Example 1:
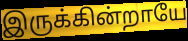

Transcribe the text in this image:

இருக்கின்றாயே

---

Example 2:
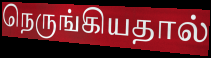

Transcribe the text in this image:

நெருங்கியதால்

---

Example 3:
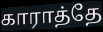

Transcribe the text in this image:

காராத்தே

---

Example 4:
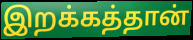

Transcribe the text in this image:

இறக்கத்தான்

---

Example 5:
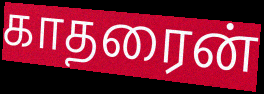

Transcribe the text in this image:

காதரைன்